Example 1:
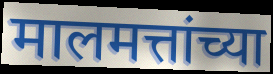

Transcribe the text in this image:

मालमत्तांच्या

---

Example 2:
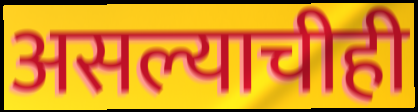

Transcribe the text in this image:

असल्याचीही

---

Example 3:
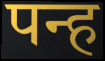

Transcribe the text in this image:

पन्ह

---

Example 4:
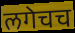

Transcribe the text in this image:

लगेचच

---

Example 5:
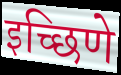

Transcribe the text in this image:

इच्छिणे